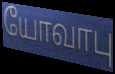
யோவாபு